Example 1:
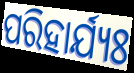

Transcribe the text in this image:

ପରିହାର୍ଯ୍ୟଃ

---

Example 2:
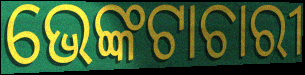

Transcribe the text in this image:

ଭେଙ୍କଟାଚାରୀ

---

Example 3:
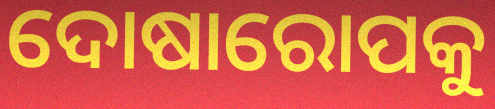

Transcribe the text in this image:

ଦୋଷାରୋପକୁ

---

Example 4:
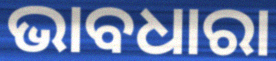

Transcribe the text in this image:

ଭାବଧାରା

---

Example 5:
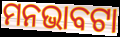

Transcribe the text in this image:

ମନଭାବଟା